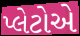
પ્લેટોએ